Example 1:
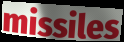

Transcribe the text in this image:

missiles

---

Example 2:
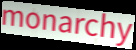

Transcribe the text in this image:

monarchy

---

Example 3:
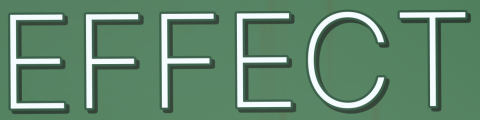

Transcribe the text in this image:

EFFECT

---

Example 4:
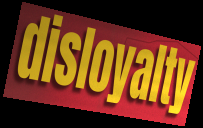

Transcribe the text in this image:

disloyalty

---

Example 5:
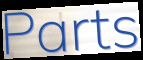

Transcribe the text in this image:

Parts